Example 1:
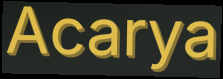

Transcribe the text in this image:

Acarya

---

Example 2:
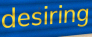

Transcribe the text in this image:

desiring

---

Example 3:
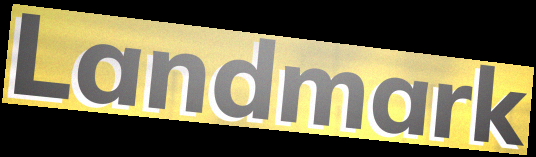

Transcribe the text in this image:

Landmark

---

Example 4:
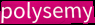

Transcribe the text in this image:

polysemy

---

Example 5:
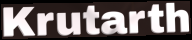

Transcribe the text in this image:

Krutarth